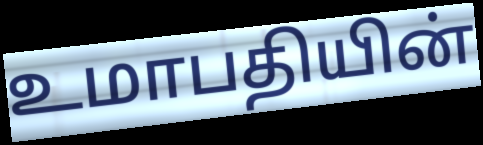
உமாபதியின்